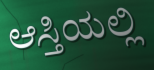
ಆಸ್ತಿಯಲ್ಲಿ